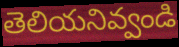
తెలియనివ్వండి